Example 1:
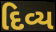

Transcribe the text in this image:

દિવ્ય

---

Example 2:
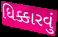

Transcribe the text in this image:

ધિક્કારવું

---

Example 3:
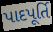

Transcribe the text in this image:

પાદપૂર્તિ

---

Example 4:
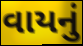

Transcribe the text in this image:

વાયનું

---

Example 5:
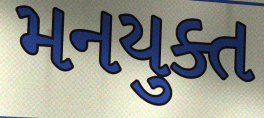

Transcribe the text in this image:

મનયુક્ત